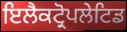
ਇਲੈਕਟ੍ਰੋਪਲੇਟਿਡ